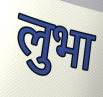
लुभा